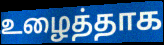
உழைத்தாக